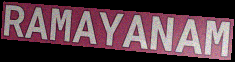
RAMAYANAM